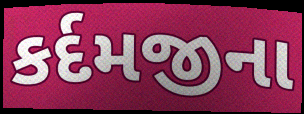
કર્દમજીના